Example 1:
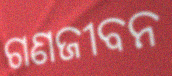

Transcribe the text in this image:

ଗଣଜୀବନ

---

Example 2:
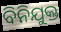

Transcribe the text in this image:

ବିନିଯୁକ୍ତ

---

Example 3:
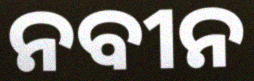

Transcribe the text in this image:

ନବୀନ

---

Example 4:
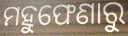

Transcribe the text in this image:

ମହୁଫେଣାରୁ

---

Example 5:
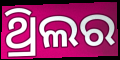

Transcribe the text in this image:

ଥ୍ରିଲର